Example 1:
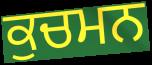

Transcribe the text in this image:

ਕੁਚਮਨ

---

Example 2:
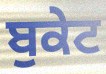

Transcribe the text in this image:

ਬੁਕੇਟ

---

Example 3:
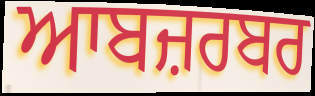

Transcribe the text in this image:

ਆਬਜ਼ਰਬਰ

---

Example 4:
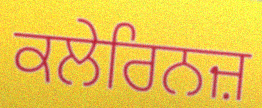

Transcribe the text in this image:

ਕਲੇਰਿਨਜ਼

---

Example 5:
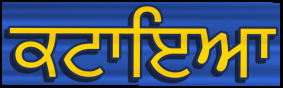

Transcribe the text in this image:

ਕਟਾਇਆ